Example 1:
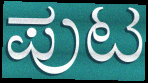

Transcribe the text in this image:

ಪುಟ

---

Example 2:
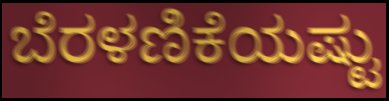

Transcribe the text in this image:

ಬೆರಳಣಿಕೆಯಷ್ಟು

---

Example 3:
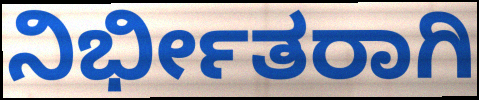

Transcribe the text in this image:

ನಿರ್ಭೀತರಾಗಿ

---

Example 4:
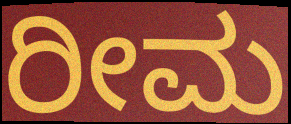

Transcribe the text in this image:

ರೀಮ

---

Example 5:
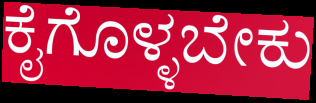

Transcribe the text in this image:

ಕೈಗೊಳ್ಳಬೇಕು